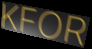
KFOR